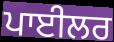
ਪਾਈਲਰ